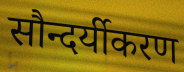
सौन्दर्यीकरण